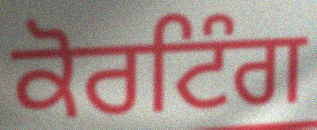
ਕੋਰਟਿੰਗ